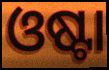
ଓଷ୍ଟା